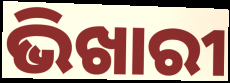
ଭିଖାରୀ